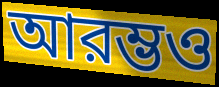
আরম্ভও